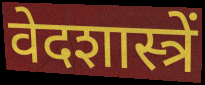
वेदशास्त्रें